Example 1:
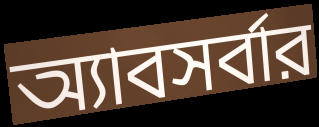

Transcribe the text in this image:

অ্যাবসর্বার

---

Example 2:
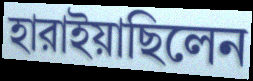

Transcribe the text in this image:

হারাইয়াছিলেন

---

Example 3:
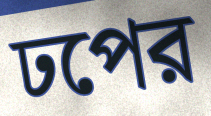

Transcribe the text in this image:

ঢপের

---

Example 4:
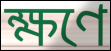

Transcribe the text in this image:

ক্ষণে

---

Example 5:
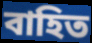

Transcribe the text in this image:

বাহিত